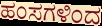
ಹಂಸಗಳಿಂದ